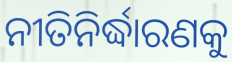
ନୀତିନିର୍ଦ୍ଧାରଣକୁ